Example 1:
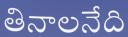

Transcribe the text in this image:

తినాలనేది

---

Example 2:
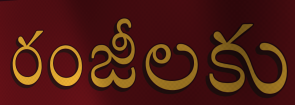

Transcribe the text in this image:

రంజీలకు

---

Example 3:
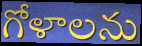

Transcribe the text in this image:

గోళాలను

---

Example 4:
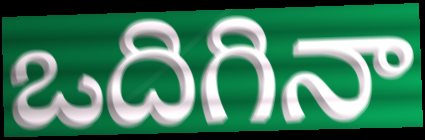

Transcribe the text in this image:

ఒదిగినా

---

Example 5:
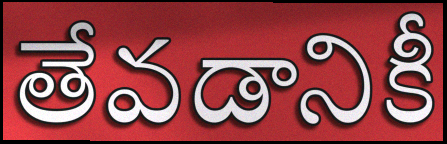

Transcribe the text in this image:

తేవడానికీ